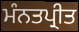
ਮੰਨਤਪ੍ਰੀਤ